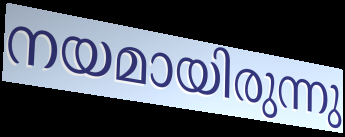
നയമായിരുന്നു